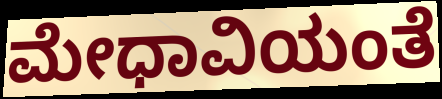
ಮೇಧಾವಿಯಂತೆ